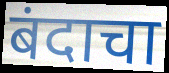
बंदाचा